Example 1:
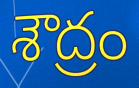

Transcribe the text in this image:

శౌద్రం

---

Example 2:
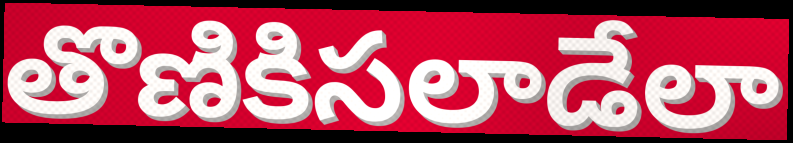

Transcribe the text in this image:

తొణికిసలాడేలా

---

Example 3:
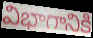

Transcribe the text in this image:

విభాగానికి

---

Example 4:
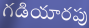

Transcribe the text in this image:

గడియారపు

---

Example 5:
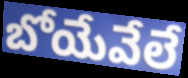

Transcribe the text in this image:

బోయేవేలే